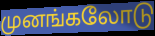
முனங்கலோடு